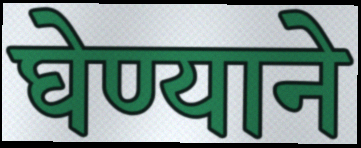
घेण्याने